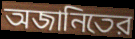
অজানিতের